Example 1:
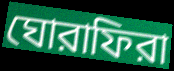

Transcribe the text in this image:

ঘোরাফিরা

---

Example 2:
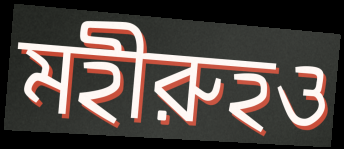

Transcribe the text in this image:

মহীরুহও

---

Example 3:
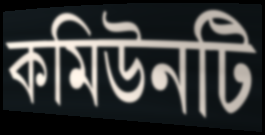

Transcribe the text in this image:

কমিউনটি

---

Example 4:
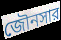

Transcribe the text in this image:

জৌনসার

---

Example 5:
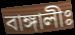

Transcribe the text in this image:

বাঙ্গালীঃ